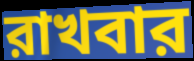
রাখবার